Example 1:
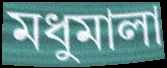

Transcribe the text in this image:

মধুমালা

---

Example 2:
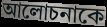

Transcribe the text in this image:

আলোচনাকে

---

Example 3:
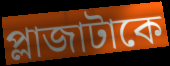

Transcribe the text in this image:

প্লাজাটাকে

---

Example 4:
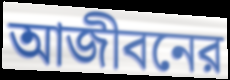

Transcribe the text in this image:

আজীবনের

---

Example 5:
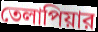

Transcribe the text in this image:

তেলাপিয়ার